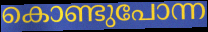
കൊണ്ടുപോന്ന